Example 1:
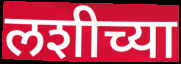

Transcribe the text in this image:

लशीच्या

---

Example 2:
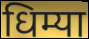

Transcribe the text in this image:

धिम्या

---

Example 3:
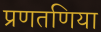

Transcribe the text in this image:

प्रणतणिया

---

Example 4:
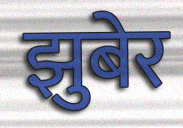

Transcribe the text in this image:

झुबेर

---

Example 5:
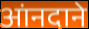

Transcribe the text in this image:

आंनदाने